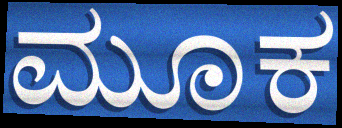
ಮೂಕ